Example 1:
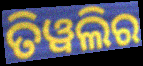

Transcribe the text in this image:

ତିୱଲିର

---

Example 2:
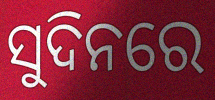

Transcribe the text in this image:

ସୁଦିନରେ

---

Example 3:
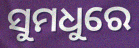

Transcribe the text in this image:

ସୁମଧୁରେ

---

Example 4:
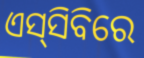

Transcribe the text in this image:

ଏସ୍‌ସିବିରେ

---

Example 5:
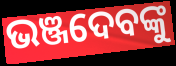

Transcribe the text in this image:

ଭଞ୍ଜଦେବଙ୍କୁ